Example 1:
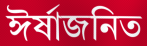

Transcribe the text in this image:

ঈর্ষাজনিত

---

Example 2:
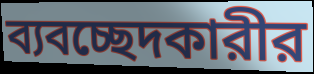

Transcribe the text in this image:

ব্যবচ্ছেদকারীর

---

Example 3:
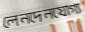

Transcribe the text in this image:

লেনদেনযোগ্য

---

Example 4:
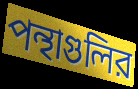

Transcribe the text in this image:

পন্থাগুলির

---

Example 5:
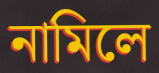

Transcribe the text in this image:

নামিলে